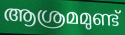
ആശ്രമമുണ്ട്